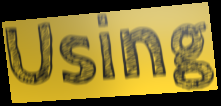
Using